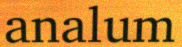
analum